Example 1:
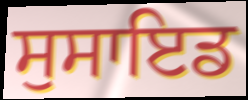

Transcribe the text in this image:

ਸੁਸਾਇਡ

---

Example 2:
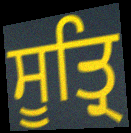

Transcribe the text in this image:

ਸੂਤ੍ਰਿ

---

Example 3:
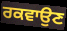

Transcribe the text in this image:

ਰਕਵਾਉਣ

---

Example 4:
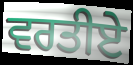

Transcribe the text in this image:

ਵਰਤੀਏ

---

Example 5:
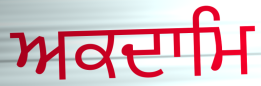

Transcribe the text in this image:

ਅਕਦਾਮਿ